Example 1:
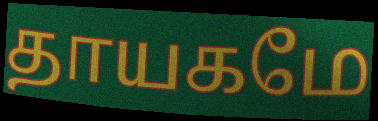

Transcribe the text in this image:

தாயகமே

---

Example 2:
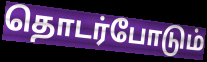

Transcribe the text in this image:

தொடர்போடும்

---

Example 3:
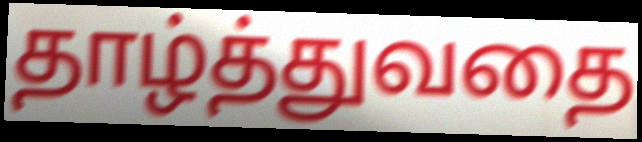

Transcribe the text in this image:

தாழ்த்துவதை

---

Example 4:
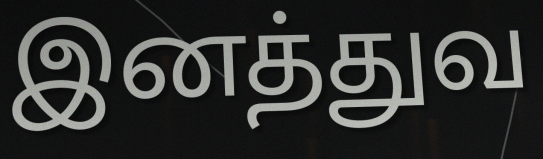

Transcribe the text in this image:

இனத்துவ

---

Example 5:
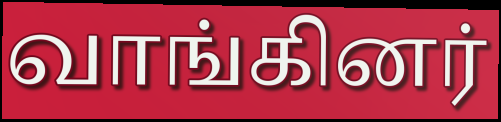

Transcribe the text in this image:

வாங்கினர்